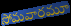
సోమవారమూ